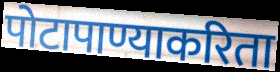
पोटापाण्याकरिता